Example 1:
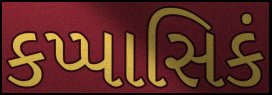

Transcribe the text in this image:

કપ્પાસિકં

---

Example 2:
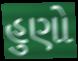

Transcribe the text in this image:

હુણો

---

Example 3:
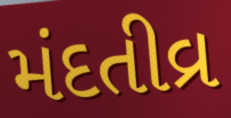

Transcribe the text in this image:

મંદતીવ્ર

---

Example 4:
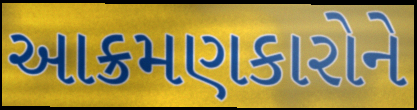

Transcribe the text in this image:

આક્રમણકારોને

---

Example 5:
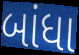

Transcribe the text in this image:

બાંધા